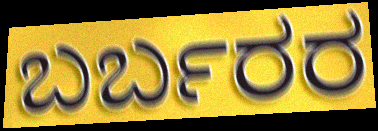
ಬರ್ಬರರ